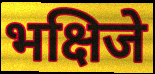
भक्षिजे